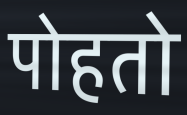
पोहतो